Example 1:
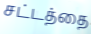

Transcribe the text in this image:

சட்டத்தை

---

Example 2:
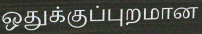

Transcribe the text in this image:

ஒதுக்குப்புறமான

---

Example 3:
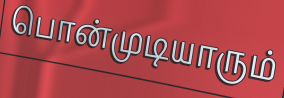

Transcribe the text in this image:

பொன்முடியாரும்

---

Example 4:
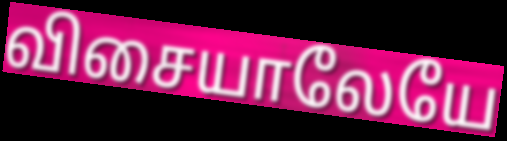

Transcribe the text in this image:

விசையாலேயே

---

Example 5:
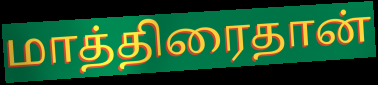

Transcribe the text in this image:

மாத்திரைதான்